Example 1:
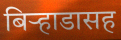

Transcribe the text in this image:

बिऱ्हाडासह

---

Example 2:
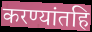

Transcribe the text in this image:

करण्यांतहि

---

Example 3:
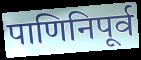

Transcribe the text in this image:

पाणिनिपूर्व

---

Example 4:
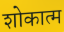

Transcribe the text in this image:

शोकात्म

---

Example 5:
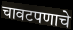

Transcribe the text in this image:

चावटपणाचे